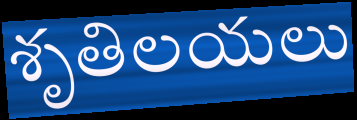
శృతిలయలు